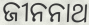
ଜୀନନାଥ